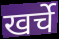
खर्चे